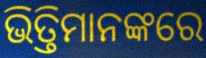
ଭିତ୍ତିମାନଙ୍କରେ